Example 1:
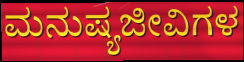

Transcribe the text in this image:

ಮನುಷ್ಯಜೀವಿಗಳ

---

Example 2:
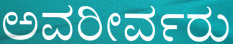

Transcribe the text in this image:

ಅವರೀರ್ವರು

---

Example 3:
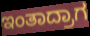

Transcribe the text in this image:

ಇಂತಾದ್ರಾಗ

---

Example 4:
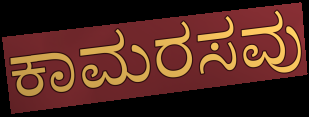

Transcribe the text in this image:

ಕಾಮರಸವು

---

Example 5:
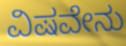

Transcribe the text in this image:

ವಿಷವೇನು